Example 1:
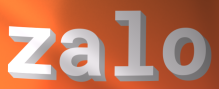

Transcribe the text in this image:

zalo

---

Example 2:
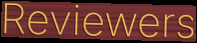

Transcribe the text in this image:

Reviewers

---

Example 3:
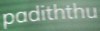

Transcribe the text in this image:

padiththu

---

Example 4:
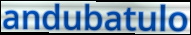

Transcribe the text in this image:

andubatulo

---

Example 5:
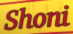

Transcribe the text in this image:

Shoni